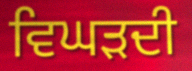
ਵਿਘੜਦੀ